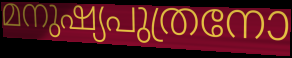
മനുഷ്യപുത്രനോ